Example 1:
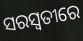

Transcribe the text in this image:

ସରସ୍ୱତୀରେ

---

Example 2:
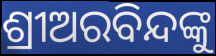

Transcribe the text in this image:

ଶ୍ରୀଅରବିନ୍ଦଙ୍କୁ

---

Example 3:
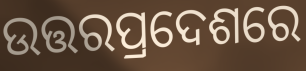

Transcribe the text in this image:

ଉତ୍ତରପ୍ରଦେଶରେ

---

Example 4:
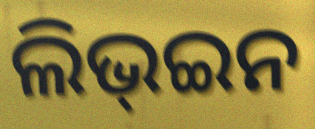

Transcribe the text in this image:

ଲିଭ୍ଇନ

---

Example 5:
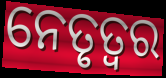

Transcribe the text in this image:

ନେତୃତ୍ଵର